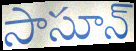
సాసూన్